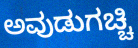
ಅವುಡುಗಚ್ಚಿ